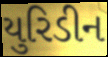
યુરિડીન